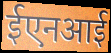
ईएनआई